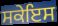
ਸਕੇਇਸ